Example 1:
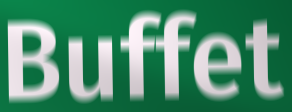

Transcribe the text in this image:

Buffet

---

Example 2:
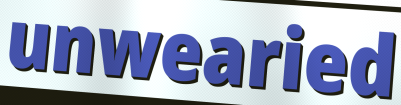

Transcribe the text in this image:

unwearied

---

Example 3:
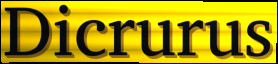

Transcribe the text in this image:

Dicrurus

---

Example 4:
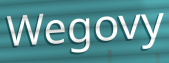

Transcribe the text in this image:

Wegovy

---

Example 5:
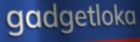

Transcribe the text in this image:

gadgetloka